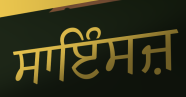
ਸਾਇੰਸਜ਼